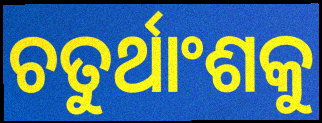
ଚତୁର୍ଥାଂଶକୁ